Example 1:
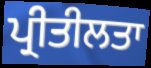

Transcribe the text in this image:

ਪ੍ਰੀਤੀਲਤਾ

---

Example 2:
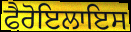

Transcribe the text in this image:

ਫੈਰੋਇਲਾਇਸ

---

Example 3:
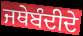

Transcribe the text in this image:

ਜਥੇਬੰਦੀਦੇ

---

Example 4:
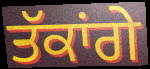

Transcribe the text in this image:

ਤੱਕਾਂਗੇ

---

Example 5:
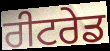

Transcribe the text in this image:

ਰੀਟਰੇਡ